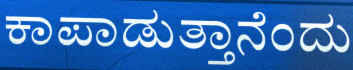
ಕಾಪಾಡುತ್ತಾನೆಂದು